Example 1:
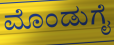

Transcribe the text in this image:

ಮೊಂಡುಗೈ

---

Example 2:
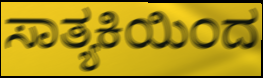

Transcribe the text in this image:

ಸಾತ್ಯಕಿಯಿಂದ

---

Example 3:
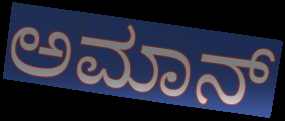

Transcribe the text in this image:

ಅಮಾನ್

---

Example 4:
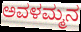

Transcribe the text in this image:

ಅವಳಮ್ಮನ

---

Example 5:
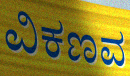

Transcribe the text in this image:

ವಿಕಣವ